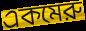
একমেৰু